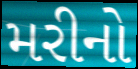
મરીનો